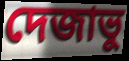
দেজাভু